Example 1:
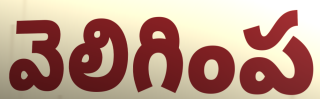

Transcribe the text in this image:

వెలిగింప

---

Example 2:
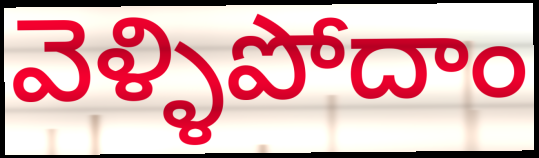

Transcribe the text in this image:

వెళ్ళిపోదాం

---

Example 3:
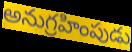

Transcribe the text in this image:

అనుగ్రహింపుడు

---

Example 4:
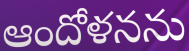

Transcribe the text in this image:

ఆందోళనను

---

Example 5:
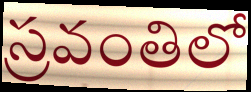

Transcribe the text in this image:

స్రవంతిలో